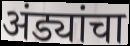
अंड्यांचा